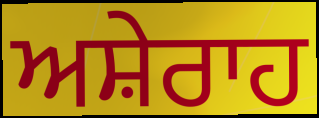
ਅਸ਼ੇਰਾਹ